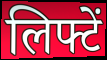
लिफ्टें